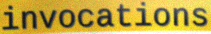
invocations